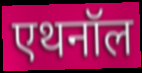
एथनॉल